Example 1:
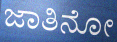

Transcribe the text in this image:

ಜಾತಿನೋ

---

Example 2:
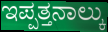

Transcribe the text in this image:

ಇಪ್ಪತ್ತನಾಲ್ಕು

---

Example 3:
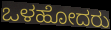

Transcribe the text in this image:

ಒಳಹೋದರು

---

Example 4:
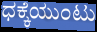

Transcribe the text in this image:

ಧಕ್ಕೆಯುಂಟು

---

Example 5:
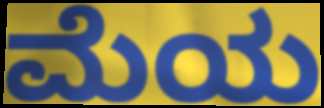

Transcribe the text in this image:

ಮೆಯ